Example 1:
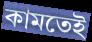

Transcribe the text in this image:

কামতেই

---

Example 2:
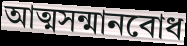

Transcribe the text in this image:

আত্মসন্মানবোধ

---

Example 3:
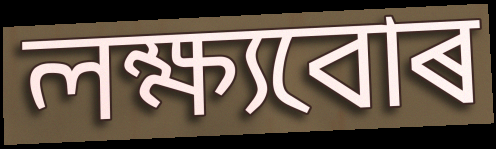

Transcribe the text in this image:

লক্ষ্যবোৰ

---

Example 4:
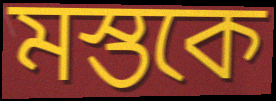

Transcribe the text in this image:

মস্তকে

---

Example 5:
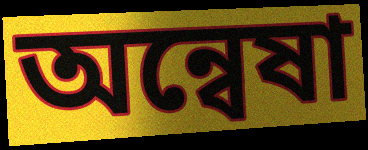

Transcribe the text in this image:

অন্বেষা